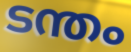
ടന്തം